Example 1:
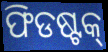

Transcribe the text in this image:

ଫିଡଷ୍ଟକ୍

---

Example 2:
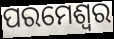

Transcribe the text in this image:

ପରମେଶ୍ବର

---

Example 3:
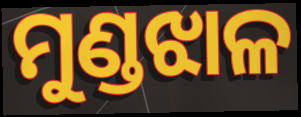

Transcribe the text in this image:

ମୁଣ୍ଡଝାଳ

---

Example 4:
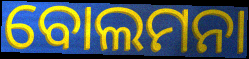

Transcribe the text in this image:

ବୋଲମନା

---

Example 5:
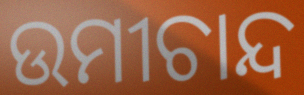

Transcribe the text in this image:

ଉମୀଚାନ୍ଦ